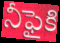
నీఫైకి